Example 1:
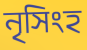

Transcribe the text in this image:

নৃসিংহ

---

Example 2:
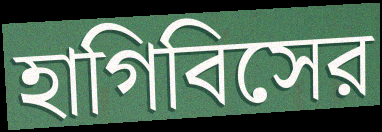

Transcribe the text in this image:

হাগিবিসের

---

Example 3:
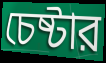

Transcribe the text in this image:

চেষ্টার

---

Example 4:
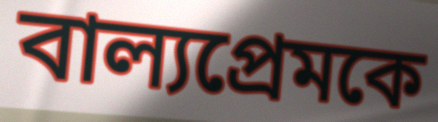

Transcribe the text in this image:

বাল্যপ্রেমকে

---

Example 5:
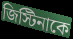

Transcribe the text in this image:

জিস্টিনাকে